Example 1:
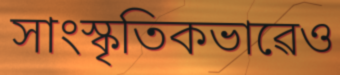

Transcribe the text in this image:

সাংস্কৃতিকভাৱেও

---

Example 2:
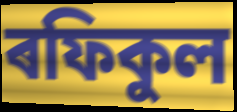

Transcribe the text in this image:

ৰফিকুল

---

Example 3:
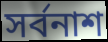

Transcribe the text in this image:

সৰ্বনাশ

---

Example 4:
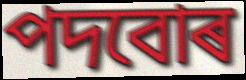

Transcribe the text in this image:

পদবোৰ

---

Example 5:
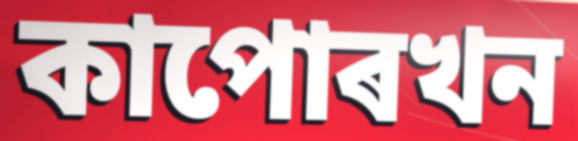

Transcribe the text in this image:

কাপোৰখন